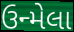
ઉન્મેલા